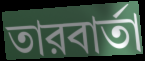
তারবার্তা